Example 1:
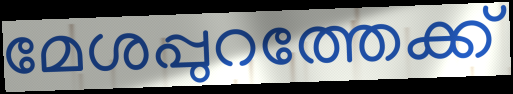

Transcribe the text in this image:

മേശപ്പുറത്തേക്ക്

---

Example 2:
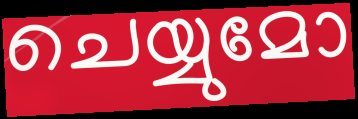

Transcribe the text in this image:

ചെയ്യുമോ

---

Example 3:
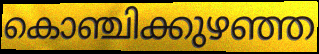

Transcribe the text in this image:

കൊഞ്ചിക്കുഴഞ്ഞ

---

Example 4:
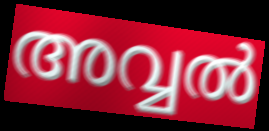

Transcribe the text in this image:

അവ്വൽ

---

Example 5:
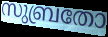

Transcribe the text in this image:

സുബ്രതോ